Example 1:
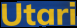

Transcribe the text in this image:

Utari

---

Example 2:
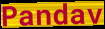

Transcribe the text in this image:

Pandav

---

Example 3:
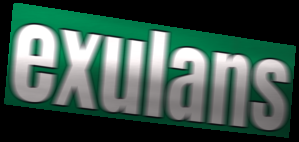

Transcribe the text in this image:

exulans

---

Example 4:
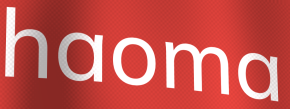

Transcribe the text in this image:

haoma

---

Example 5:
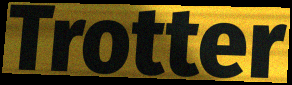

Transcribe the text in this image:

Trotter